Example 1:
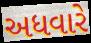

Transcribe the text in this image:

અધવારે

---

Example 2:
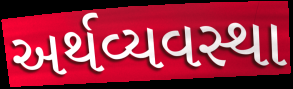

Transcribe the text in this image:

અર્થવ્યવસ્થા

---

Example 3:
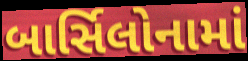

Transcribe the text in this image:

બાર્સિલોનામાં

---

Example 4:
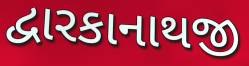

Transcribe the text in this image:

દ્વારકાનાથજી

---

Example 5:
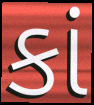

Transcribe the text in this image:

કાં